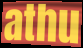
athu